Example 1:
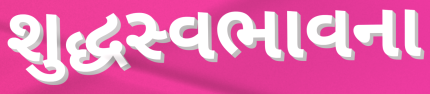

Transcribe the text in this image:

શુદ્ધસ્વભાવના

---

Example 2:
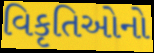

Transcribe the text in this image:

વિકૃતિઓનો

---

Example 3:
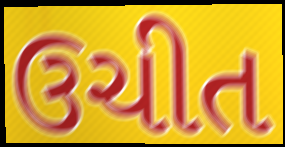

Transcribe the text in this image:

ઉચીત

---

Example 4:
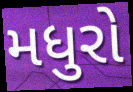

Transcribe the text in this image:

મધુરો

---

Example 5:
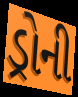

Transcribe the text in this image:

ડ્રોની